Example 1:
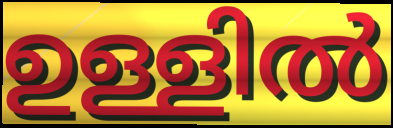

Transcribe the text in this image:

ഉള്ളിൽ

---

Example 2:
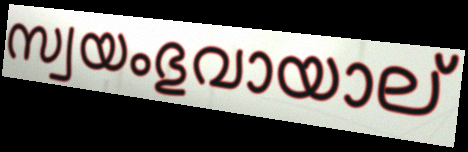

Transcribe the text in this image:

സ്വയംഭുവായാല്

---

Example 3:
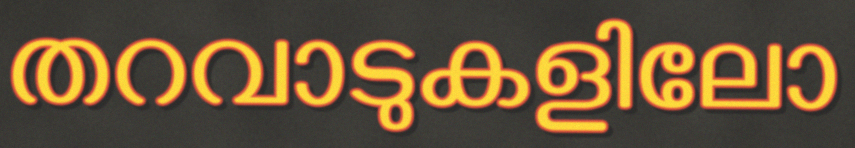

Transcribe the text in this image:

തറവാടുകളിലോ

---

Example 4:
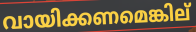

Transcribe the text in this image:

വായിക്കണമെങ്കില്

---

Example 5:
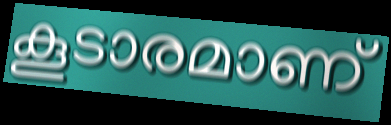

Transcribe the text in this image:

കൂടാരമാണ്